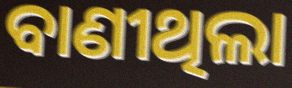
ବାଣୀଥିଲା